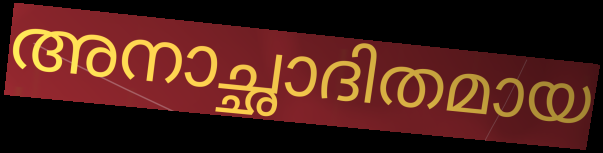
അനാച്ഛാദിതമായ